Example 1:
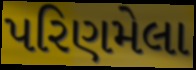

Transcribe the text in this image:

પરિણમેલા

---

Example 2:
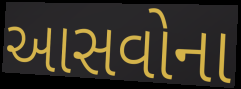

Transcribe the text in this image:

આસવોના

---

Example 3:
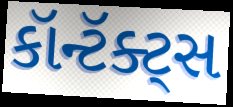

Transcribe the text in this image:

કૉન્ટૅક્ટ્સ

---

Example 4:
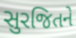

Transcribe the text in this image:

સુરજિતને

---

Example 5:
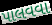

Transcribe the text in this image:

પાલવવા